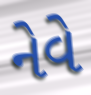
નેવે